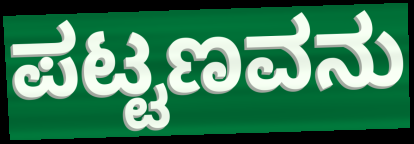
ಪಟ್ಟಣವನು